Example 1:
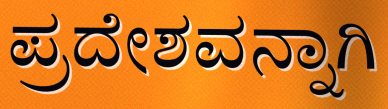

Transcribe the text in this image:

ಪ್ರದೇಶವನ್ನಾಗಿ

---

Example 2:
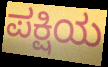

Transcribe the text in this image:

ಪಕ್ಷಿಯ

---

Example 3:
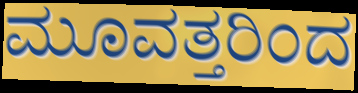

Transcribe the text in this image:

ಮೂವತ್ತರಿಂದ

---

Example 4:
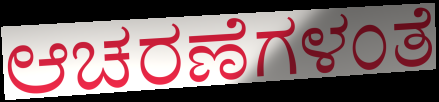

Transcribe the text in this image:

ಆಚರಣೆಗಳಂತೆ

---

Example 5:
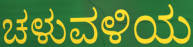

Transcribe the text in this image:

ಚಳುವಳಿಯ